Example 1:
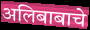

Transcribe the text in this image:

अलिबाबाचे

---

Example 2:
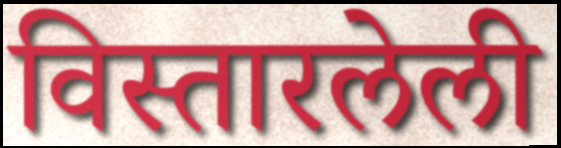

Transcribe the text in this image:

विस्तारलेली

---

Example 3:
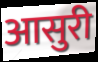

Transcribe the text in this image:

आसुरी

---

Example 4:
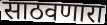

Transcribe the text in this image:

साठवणारा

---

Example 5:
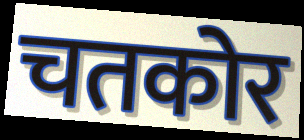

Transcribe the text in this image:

चतकोर